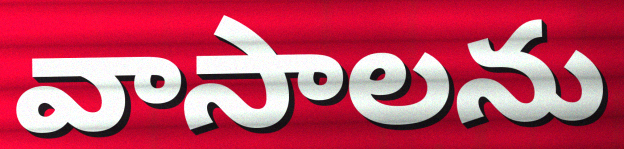
వాసాలను